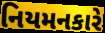
નિયમનકારે